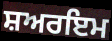
ਸ਼ਅਰਇਮ